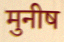
मुनीष